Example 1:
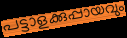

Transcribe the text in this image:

പട്ടാളക്കുപ്പായവും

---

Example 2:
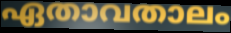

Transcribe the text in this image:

ഏതാവതാലം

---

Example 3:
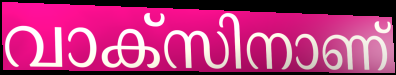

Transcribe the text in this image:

വാക്സിനാണ്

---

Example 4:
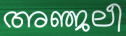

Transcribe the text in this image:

അഞ്ജലീ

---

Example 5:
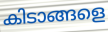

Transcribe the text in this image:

കിടാങ്ങളെ